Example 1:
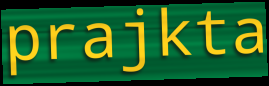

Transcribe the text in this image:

prajkta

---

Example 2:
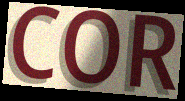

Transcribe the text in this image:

COR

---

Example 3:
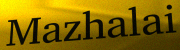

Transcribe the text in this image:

Mazhalai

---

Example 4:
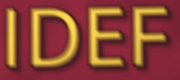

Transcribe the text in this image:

IDEF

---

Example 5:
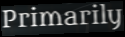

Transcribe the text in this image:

Primarily